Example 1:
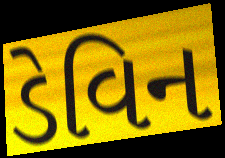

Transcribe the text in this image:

ડેવિન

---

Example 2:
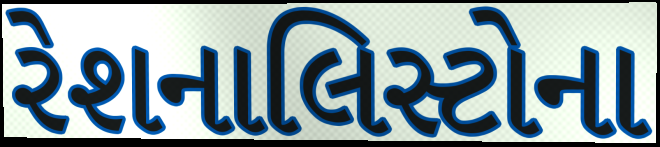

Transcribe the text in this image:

રેશનાલિસ્ટોના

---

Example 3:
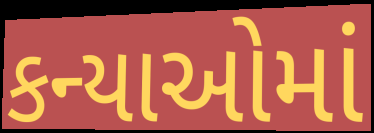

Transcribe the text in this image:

કન્યાઓમાં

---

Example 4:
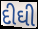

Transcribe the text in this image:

દીઘી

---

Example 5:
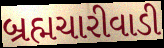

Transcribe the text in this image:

બ્રહ્મચારીવાડી